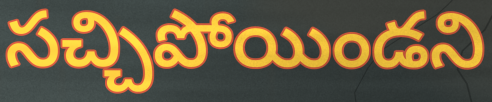
సచ్చిపోయిండని